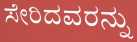
ಸೇರಿದವರನ್ನು